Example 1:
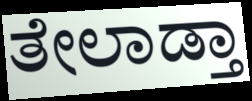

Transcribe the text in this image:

ತೇಲಾಡ್ತಾ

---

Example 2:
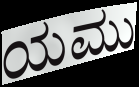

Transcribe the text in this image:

ಯಮು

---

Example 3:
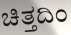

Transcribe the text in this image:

ಚಿತ್ತದಿಂ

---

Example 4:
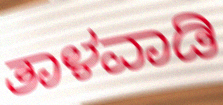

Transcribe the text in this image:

ತಾಳವಾಡಿ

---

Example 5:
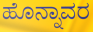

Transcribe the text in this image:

ಹೊನ್ನಾವರ